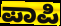
ಪಾಪಿ